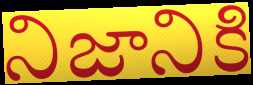
నిజానికి